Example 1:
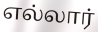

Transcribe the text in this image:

எல்லார்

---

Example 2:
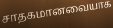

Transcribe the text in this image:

சாதகமானவையாக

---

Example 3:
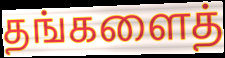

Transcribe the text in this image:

தங்களைத்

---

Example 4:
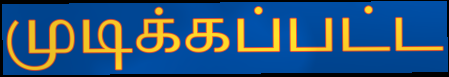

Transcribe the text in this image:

முடிக்கப்பட்ட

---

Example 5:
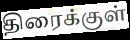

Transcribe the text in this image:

திரைக்குள்